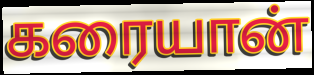
கரையான்